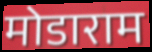
मोडाराम